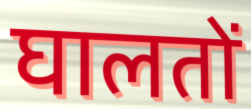
घालतों